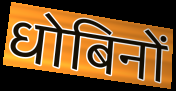
धोबिनों